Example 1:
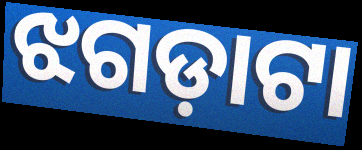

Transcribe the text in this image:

ଝଗଡ଼ାଟା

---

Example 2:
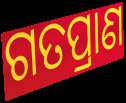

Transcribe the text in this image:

ଗତପ୍ରାଣ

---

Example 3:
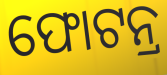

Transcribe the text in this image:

ଫୋଟନ୍ର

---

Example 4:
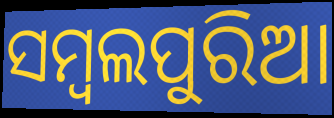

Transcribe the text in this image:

ସମ୍ୱଲପୁରିଆ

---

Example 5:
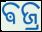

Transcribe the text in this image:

ଵଜ୍ର